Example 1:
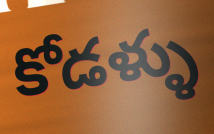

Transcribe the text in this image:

కోడళ్ళు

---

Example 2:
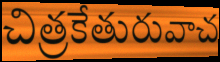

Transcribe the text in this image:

చిత్రకేతురువాచ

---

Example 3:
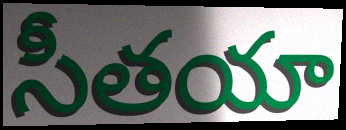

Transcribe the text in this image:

సీతయా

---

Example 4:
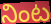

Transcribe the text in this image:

నింట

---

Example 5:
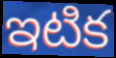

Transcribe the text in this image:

ఇటిక